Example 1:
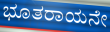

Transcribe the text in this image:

ಭೂತರಾಯನೇ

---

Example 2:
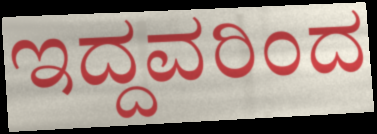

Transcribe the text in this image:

ಇದ್ದವರಿಂದ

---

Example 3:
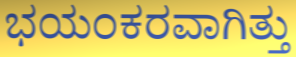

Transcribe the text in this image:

ಭಯಂಕರವಾಗಿತ್ತು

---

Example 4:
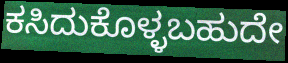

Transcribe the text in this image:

ಕಸಿದುಕೊಳ್ಳಬಹುದೇ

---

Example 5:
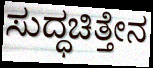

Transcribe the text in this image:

ಸುದ್ಧಚಿತ್ತೇನ